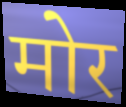
मोर